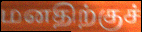
மனதிற்குச்